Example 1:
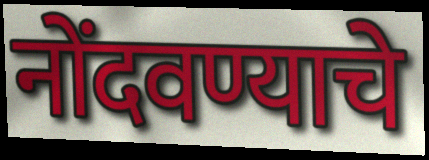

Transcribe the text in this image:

नोंदवण्याचे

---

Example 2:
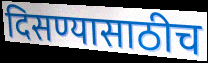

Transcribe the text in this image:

दिसण्यासाठीच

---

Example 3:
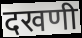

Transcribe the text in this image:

दखणी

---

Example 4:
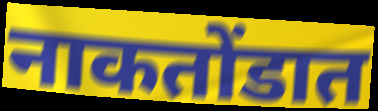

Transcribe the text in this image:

नाकतोंडात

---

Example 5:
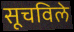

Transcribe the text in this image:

सूचविले